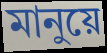
মানুয়ে